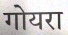
गोयरा